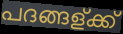
പദങ്ങള്ക്ക്